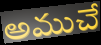
అముచే